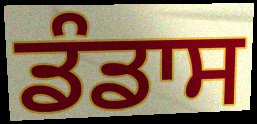
ਡੰਡਾਸ